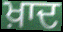
ਖ਼ਾਦ